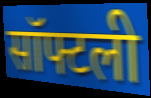
सॉफ्टली